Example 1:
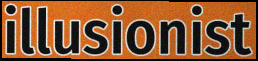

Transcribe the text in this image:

illusionist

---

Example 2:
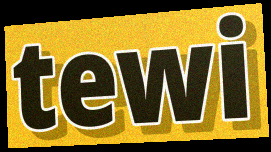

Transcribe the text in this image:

tewi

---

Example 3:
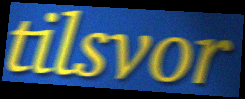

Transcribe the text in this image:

tilsvor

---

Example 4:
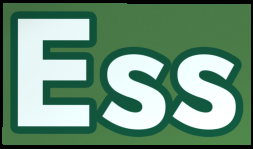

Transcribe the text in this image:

Ess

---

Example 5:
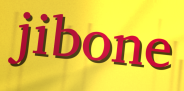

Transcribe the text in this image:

jibone